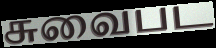
சுவைபட